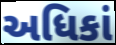
અધિકાં